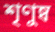
শৃণুষ্ব